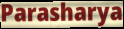
Parasharya